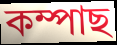
কম্পাছ